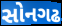
સોનગઢ